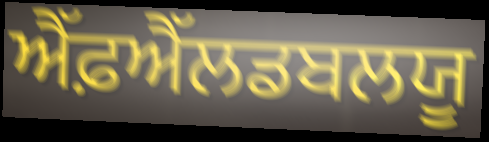
ਐੱਫ਼ਐੱਲਡਬਲਯੂ